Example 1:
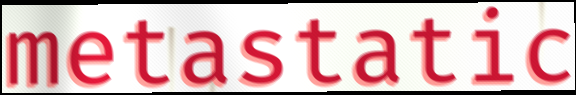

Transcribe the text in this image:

metastatic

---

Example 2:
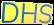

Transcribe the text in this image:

DHS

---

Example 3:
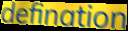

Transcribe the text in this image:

defination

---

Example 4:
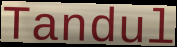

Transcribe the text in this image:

Tandul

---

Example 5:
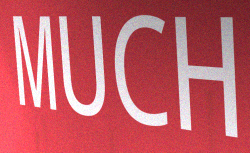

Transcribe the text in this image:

MUCH